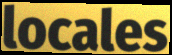
locales